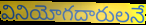
వినియోగదారులనే